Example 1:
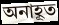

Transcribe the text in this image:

অনাহূত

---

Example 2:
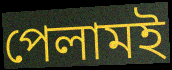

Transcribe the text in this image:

পেলামই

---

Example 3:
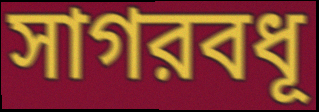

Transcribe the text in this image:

সাগরবধূ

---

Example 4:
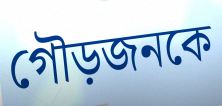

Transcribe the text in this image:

গৌড়জনকে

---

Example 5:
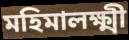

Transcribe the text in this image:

মহিমালক্ষ্মী